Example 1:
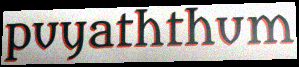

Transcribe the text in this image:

puyaththum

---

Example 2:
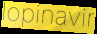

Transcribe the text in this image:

lopinavir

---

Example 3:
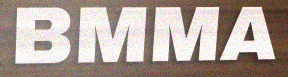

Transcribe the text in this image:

BMMA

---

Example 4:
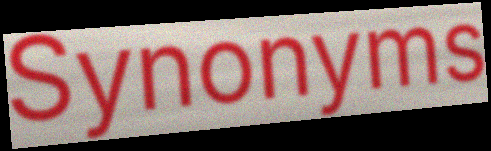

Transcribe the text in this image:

Synonyms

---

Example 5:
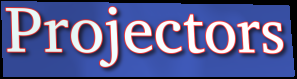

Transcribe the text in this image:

Projectors